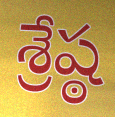
శ్రేష్ఠ